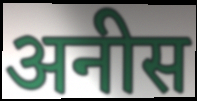
अनीस